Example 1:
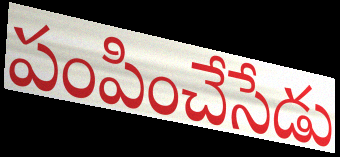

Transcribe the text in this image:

పంపించేసేడు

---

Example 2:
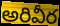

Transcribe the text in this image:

అరివీర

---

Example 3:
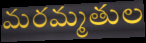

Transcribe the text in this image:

మరమ్మతుల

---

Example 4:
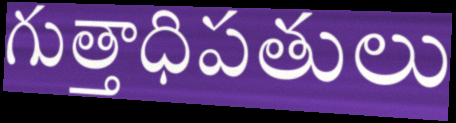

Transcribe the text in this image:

గుత్తాధిపతులు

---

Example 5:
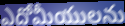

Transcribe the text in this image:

ఎదోమీయులను